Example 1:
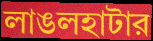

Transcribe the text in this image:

লাঙলহাটার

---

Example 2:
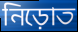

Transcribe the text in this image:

নিড়োত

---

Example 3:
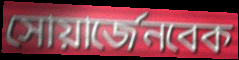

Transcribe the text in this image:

সোয়ার্জেনবেক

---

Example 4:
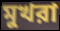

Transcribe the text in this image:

মুখরা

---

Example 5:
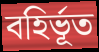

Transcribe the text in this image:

বহির্ভূত